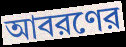
আবরণের